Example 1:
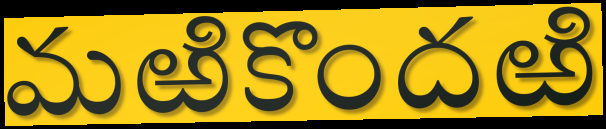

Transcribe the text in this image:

మఱికొందఱి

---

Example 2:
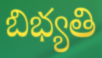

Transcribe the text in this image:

బిభ్యతి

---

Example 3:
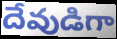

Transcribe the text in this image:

దేవుడిగా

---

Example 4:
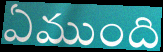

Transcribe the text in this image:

ఏముంది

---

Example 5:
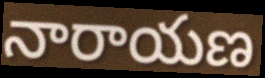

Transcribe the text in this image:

నారాయణ